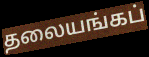
தலையங்கப்